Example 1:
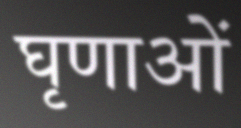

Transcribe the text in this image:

घृणाओं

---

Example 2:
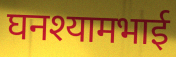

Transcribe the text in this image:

घनश्यामभाई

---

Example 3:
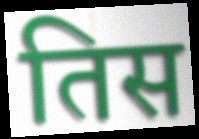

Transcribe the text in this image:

तिस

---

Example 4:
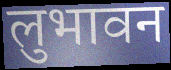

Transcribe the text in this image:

लुभावन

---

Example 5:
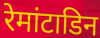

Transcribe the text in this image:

रेमांटाडिन